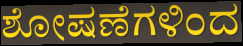
ಶೋಷಣೆಗಳಿಂದ